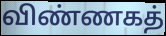
விண்ணகத்